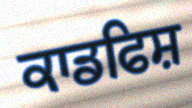
ਕਾਡਫਿਸ਼